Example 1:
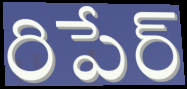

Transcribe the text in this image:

రిపేర్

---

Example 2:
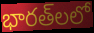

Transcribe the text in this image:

భారత్‌లలో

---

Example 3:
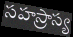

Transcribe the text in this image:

సహస్రాస్య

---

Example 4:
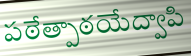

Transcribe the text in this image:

పఠేత్పాఠయేద్వాపి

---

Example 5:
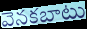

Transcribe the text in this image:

వెనకబాటు